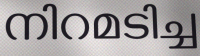
നിറമടിച്ച